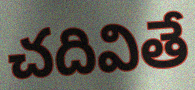
చదివితే